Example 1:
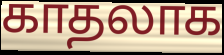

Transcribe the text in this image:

காதலாக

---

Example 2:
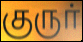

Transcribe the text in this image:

குருர்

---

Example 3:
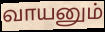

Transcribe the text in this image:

வாயனும்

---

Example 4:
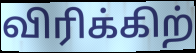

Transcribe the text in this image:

விரிக்கிற்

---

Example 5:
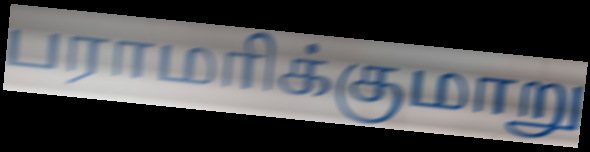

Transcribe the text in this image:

பராமரிக்குமாறு